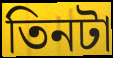
তিনটা